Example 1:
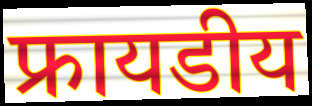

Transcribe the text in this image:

फ्रायडीय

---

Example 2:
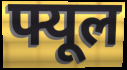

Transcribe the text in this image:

फ्यूल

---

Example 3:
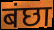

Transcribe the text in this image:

बंछा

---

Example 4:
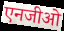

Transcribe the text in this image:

एनजीओ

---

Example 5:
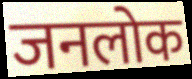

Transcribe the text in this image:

जनलोक